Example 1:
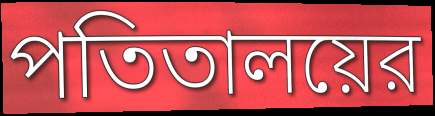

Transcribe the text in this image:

পতিতালয়ের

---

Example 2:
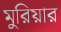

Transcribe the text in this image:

মুরিয়ার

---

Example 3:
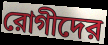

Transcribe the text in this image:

রোগীদের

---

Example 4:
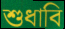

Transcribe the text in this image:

শুধাবি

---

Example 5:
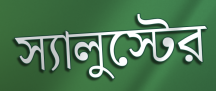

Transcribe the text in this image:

স্যালুস্টের